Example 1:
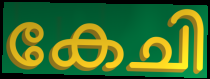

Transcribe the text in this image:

കേചി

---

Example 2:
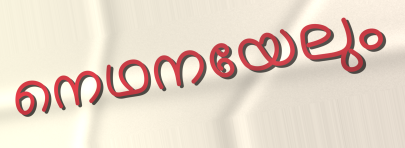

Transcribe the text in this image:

നെഥനയേലും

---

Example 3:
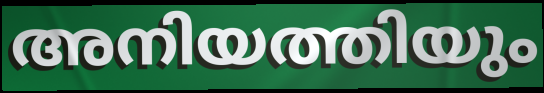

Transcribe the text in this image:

അനിയത്തിയും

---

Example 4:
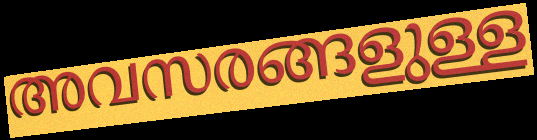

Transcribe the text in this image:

അവസരങ്ങളുള്ള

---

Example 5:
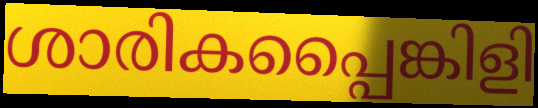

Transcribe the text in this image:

ശാരികപ്പൈങ്കിളി